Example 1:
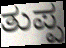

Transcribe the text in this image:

ತುಪ್ಪ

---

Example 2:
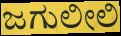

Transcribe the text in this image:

ಜಗುಲೀಲಿ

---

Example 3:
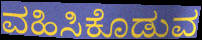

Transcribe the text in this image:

ವಹಿಸಿಕೊಡುವ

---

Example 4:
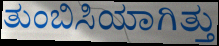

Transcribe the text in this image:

ತುಂಬಿಸಿಯಾಗಿತ್ತು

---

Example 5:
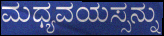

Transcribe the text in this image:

ಮಧ್ಯವಯಸ್ಸನ್ನು